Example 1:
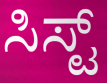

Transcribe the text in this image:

ಸಿಸ್ಟ್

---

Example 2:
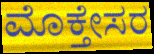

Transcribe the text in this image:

ಮೊಕ್ತೇಸರ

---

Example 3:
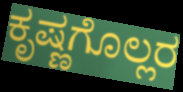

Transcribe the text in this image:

ಕೃಷ್ಣಗೊಲ್ಲರ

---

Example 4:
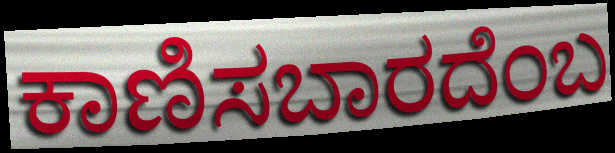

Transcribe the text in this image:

ಕಾಣಿಸಬಾರದೆಂಬ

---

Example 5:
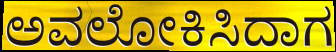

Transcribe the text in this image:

ಅವಲೋಕಿಸಿದಾಗ